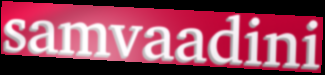
samvaadini